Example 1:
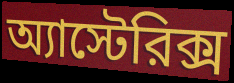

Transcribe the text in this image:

অ্যাস্টেরিক্স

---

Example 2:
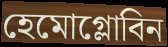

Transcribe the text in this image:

হেমোগ্লোবিন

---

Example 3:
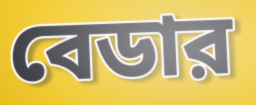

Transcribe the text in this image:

বেডার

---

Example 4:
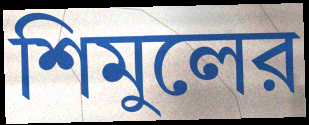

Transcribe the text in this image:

শিমুলের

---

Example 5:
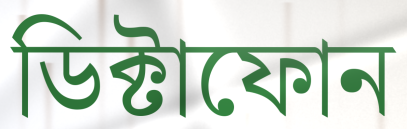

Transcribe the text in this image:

ডিক্টাফোন